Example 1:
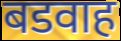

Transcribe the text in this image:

बडवाह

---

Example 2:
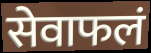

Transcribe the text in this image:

सेवाफलं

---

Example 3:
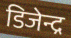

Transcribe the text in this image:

डिजेन्द्र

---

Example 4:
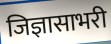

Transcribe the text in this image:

जिज्ञासाभरी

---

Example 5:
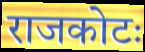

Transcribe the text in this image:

राजकोटः